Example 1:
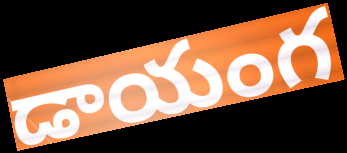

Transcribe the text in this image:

డాయంగ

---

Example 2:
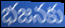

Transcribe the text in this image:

భజనకు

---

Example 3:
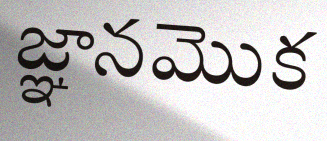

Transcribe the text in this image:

జ్ఞానమొక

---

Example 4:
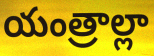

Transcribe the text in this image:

యంత్రాల్లా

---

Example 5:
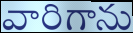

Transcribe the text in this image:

వారిగాను